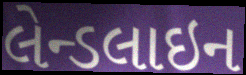
લેન્ડલાઇન